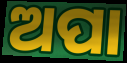
ଅପା